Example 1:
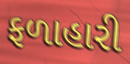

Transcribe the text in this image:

ફળાહારી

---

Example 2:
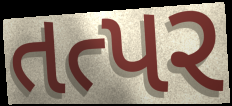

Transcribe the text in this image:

તત્પર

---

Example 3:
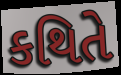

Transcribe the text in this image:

કથિતે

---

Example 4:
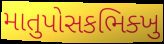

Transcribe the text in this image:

માતુપોસકભિક્ખુ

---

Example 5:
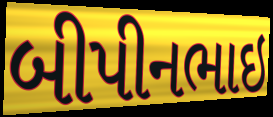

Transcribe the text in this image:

બીપીનભાઇ